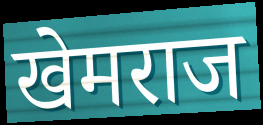
खेमराज